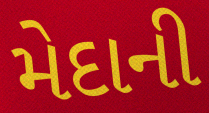
મેદાની